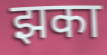
झका